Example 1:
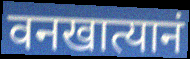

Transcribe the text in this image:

वनखात्यानं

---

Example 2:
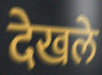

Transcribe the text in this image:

देखले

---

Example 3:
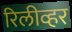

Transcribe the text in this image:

रिलीव्हर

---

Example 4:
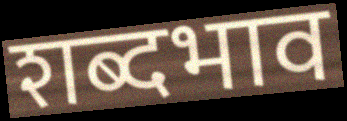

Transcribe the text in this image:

शब्दभाव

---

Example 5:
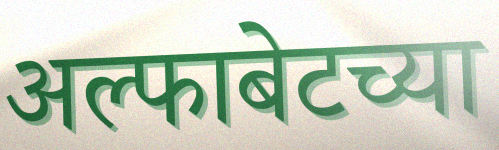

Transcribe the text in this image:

अल्फाबेटच्या